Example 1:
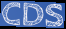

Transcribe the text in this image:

CDS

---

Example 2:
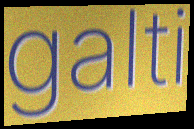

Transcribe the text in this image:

galti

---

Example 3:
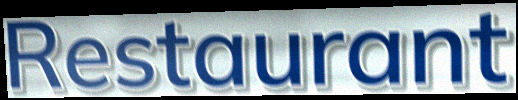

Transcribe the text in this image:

Restaurant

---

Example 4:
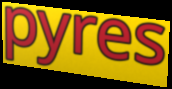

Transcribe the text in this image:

pyres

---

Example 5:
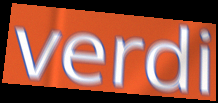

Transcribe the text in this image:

verdi